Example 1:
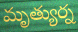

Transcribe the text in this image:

మృత్యుర్న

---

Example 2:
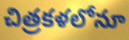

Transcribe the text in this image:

చిత్రకళలోనూ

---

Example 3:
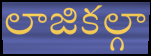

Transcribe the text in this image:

లాజికల్గా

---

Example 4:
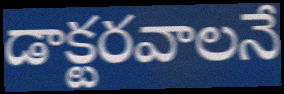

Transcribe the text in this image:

డాక్టరవాలనే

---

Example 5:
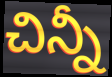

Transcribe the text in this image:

చిన్నీ